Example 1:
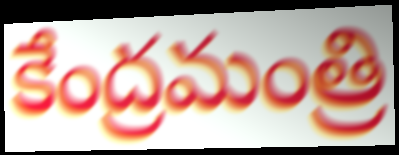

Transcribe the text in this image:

కేంద్రమంత్రి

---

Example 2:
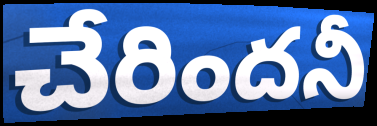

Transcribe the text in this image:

చేరిందనీ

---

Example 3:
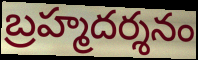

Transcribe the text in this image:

బ్రహ్మదర్శనం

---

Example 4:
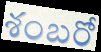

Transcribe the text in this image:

శంబరో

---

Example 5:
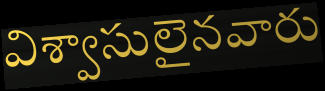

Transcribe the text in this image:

విశ్వాసులైనవారు